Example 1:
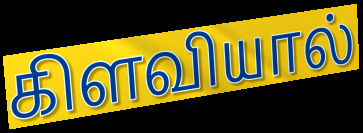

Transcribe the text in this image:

கிளவியால்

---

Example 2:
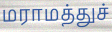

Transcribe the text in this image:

மராமத்துச்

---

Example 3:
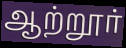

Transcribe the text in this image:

ஆற்றூர்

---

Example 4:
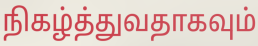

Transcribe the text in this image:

நிகழ்த்துவதாகவும்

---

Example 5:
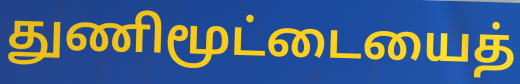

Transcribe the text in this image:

துணிமூட்டையைத்